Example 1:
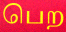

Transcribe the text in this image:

பெற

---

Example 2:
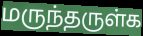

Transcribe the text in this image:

மருந்தருள்க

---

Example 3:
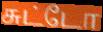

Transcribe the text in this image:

சுட்டோ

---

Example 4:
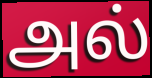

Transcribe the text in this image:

அல்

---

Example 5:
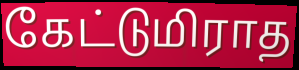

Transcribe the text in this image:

கேட்டுமிராத